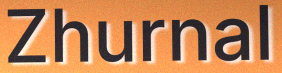
Zhurnal